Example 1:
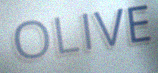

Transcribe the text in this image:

OLIVE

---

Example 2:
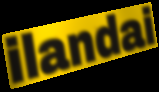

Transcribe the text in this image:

ilandai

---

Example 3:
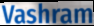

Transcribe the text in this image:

Vashram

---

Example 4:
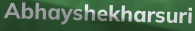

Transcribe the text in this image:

Abhayshekharsuri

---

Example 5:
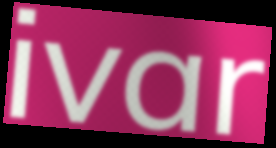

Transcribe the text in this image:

ivar